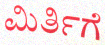
ಮಿರ್ತಿಗೆ